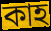
কাহ